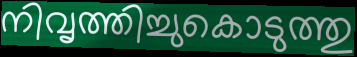
നിവൃത്തിച്ചുകൊടുത്തു